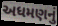
અધમણનું